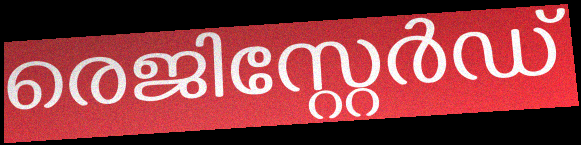
രെജിസ്റ്റേർഡ്